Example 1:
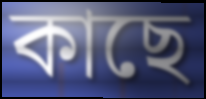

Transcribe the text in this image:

কাছে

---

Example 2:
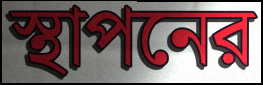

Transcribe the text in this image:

স্থাপনের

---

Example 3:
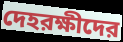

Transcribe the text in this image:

দেহরক্ষীদের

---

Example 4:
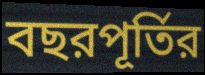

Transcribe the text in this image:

বছরপূর্তির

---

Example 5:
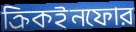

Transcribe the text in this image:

ক্রিকইনফোর